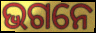
ଭଗନେ